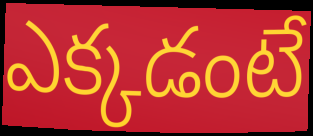
ఎక్కడంటే